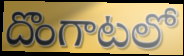
దొంగాటలో